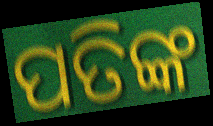
ପତିଙ୍କ